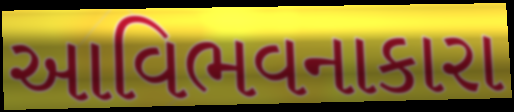
આવિભવનાકારા